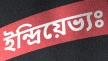
ইন্দ্রিয়েভ্যঃ